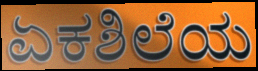
ಏಕಶಿಲೆಯ